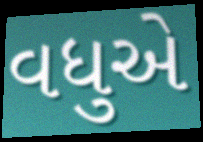
વધુએ